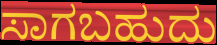
ಸಾಗಬಹುದು